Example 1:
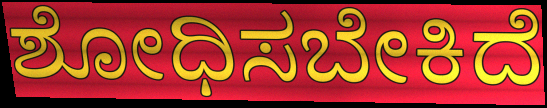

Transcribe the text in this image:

ಶೋಧಿಸಬೇಕಿದೆ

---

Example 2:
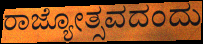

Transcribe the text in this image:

ರಾಜ್ಯೋತ್ಸವದಂದು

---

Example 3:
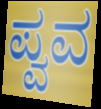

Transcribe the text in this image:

ಪ್ವವ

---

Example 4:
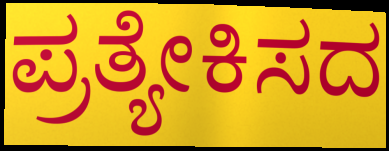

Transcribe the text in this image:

ಪ್ರತ್ಯೇಕಿಸದ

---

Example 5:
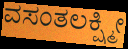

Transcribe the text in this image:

ವಸಂತಲಕ್ಷ್ಮೀ